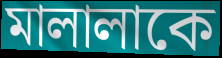
মালালাকে